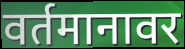
वर्तमानावर